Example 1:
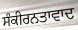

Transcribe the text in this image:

ਸੰਕੀਰਨਤਾਵਾਦ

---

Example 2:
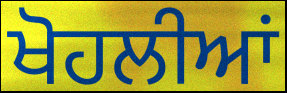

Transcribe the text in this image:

ਖੋਹਲੀਆਂ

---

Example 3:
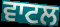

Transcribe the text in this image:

ਵਾਟਲ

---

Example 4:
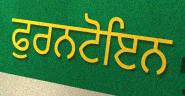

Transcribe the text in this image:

ਫੁਰਨਟੋਇਨ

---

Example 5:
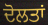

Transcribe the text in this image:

ਦੋਲਤਾਂ